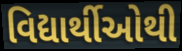
વિદ્યાર્થીઓથી